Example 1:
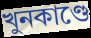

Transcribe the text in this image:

খুনকাণ্ডে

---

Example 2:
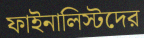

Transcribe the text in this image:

ফাইনালিস্টদের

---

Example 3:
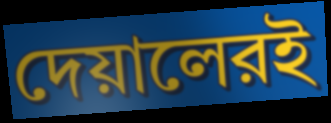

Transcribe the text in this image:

দেয়ালেরই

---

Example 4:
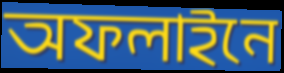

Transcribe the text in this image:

অফলাইনে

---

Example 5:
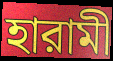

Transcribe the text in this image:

হারামী